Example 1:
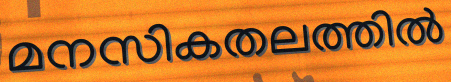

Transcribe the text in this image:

മനസികതലത്തിൽ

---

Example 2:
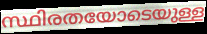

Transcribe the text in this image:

സ്ഥിരതയോടെയുള്ള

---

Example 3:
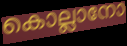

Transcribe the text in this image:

കൊല്ലാനോ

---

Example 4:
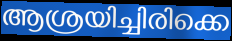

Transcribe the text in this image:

ആശ്രയിച്ചിരിക്കെ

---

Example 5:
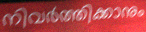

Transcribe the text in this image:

നിവർത്തിക്കാനും